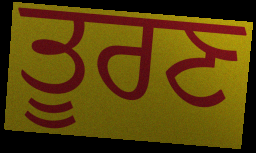
ਤੂਰਣ